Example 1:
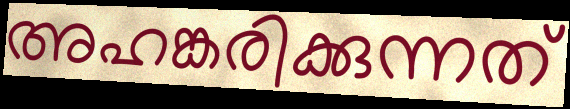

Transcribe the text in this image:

അഹങ്കരിക്കുന്നത്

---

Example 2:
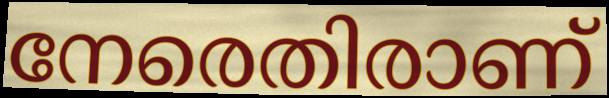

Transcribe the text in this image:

നേരെതിരാണ്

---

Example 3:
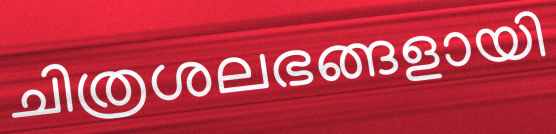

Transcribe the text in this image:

ചിത്രശലഭങ്ങളായി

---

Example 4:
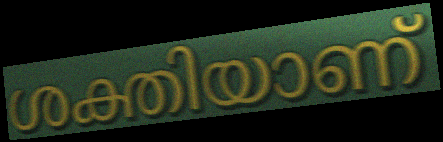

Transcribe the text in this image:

ശക്തിയാണ്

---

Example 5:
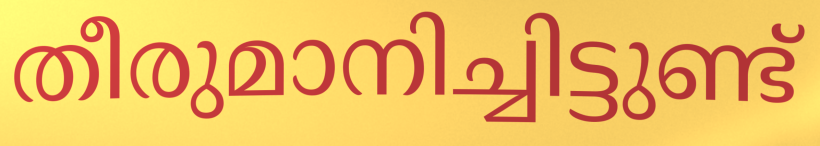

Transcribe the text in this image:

തീരുമാനിച്ചിട്ടുണ്ട്